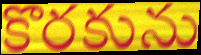
కొరకును